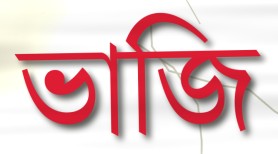
ভাজি